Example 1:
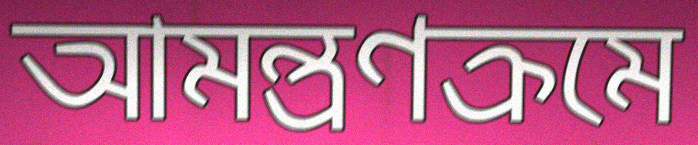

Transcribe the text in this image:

আমন্ত্ৰণক্ৰমে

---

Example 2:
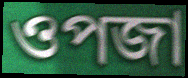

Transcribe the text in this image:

ওপজা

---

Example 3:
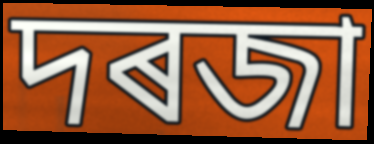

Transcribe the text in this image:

দৰজা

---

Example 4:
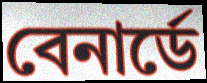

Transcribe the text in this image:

বেনাৰ্ডে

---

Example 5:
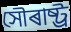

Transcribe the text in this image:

সৌৰাষ্ট্ৰ